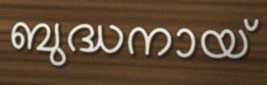
ബുദ്ധനായ്